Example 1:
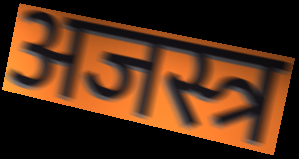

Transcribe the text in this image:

अजस्त्र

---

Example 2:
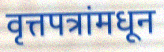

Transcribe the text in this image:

वृत्तपत्रांमधून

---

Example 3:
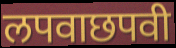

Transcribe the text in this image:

लपवाछपवी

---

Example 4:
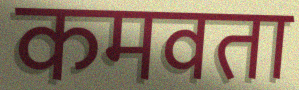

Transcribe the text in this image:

कमवता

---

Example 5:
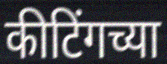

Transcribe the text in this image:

कीटिंगच्या